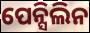
ପେନ୍ସିଲିନ